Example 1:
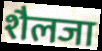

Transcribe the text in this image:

शैलजा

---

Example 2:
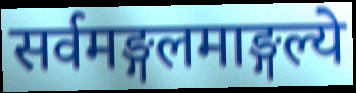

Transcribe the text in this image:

सर्वमङ्गलमाङ्गल्ये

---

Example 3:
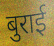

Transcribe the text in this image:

बुराई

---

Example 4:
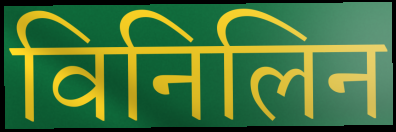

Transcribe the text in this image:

विनिलिन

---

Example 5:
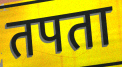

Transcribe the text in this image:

तपता